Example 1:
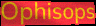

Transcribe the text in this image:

Ophisops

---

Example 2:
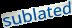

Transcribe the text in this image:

sublated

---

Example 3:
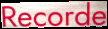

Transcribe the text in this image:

Recorde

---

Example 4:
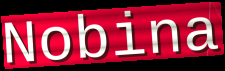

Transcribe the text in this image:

Nobina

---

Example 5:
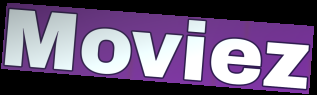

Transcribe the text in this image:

Moviez